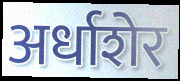
अर्धाशेर